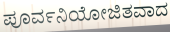
ಪೂರ್ವನಿಯೋಜಿತವಾದ